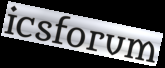
icsforum